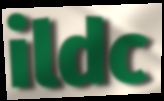
ildc